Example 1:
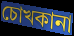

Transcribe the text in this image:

চোখকানা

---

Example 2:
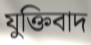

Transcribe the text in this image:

যুক্তিবাদ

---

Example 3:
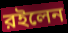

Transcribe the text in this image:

রইলেন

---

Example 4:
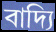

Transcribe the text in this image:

বাদ্যি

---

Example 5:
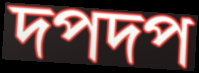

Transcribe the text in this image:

দপদপ